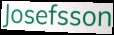
Josefsson